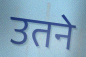
उतने